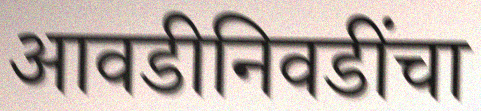
आवडीनिवडींचा